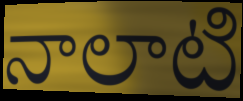
నాలాటి